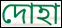
দোহা